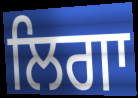
ਲਿਗਾ